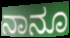
ನಾನೂ